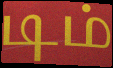
டிம்